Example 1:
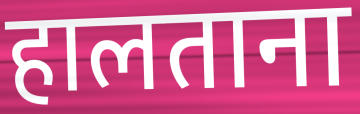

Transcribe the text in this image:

हालताना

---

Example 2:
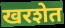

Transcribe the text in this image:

खरशेत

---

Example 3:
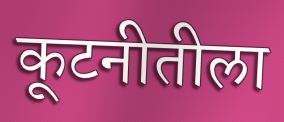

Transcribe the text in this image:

कूटनीतीला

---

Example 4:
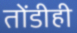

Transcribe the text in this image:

तोंडीही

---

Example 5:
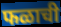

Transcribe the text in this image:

फळाची